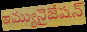
ఇమ్యునైజేషన్